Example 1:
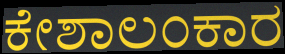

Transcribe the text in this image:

ಕೇಶಾಲಂಕಾರ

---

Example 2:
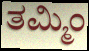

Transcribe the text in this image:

ತಮ್ಮಿಂ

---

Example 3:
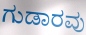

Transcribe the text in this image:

ಗುಡಾರವು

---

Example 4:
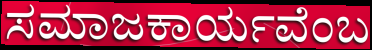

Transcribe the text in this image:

ಸಮಾಜಕಾರ್ಯವೆಂಬ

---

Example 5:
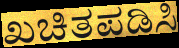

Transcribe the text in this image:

ಖಚಿತಪಡಿಸಿ